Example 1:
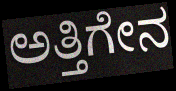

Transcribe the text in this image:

ಅತ್ತಿಗೇನ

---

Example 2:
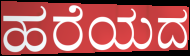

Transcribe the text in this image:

ಹರೆಯದ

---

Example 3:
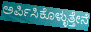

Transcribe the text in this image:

ಅರ್ಪಿಸಿಕೊಳ್ಳುತ್ತೇನೆ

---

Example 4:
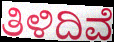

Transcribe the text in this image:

ತಿಳಿದಿವೆ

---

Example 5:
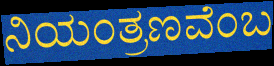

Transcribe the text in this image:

ನಿಯಂತ್ರಣವೆಂಬ